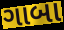
ગાબા